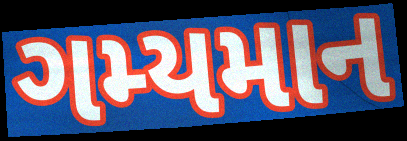
ગમ્યમાન